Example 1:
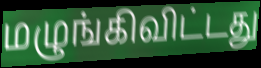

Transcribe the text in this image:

மழுங்கிவிட்டது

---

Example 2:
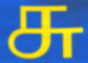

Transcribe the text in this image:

சு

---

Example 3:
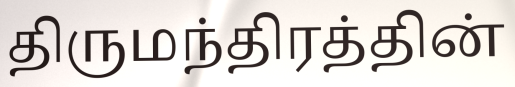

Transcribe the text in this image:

திருமந்திரத்தின்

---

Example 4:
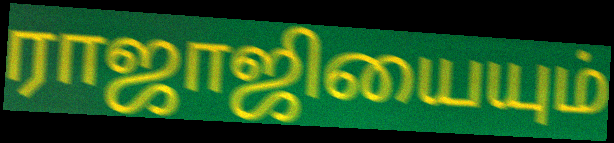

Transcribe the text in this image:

ராஜாஜியையும்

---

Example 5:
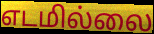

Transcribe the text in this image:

எடமில்லை